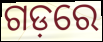
ଗଡ଼ରେ